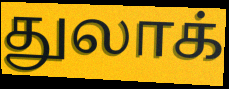
துலாக்